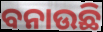
ବନାଉଛି